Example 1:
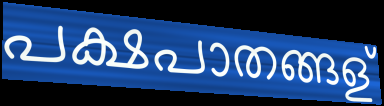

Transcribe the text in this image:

പക്ഷപാതങ്ങള്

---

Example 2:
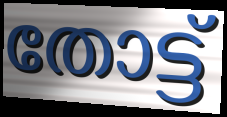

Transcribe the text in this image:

തോട്ട്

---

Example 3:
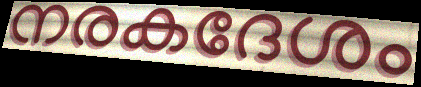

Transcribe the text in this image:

നരകദേശം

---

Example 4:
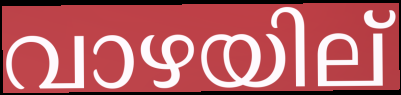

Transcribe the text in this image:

വാഴയില്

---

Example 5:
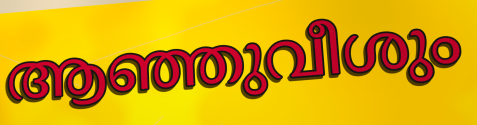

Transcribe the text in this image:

ആഞ്ഞുവീശും